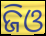
ଜିଓ